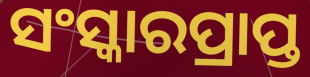
ସଂସ୍କାରପ୍ରାପ୍ତ